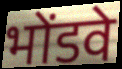
भोंडवे